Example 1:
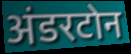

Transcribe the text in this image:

अंडरटोन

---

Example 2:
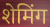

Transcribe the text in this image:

शेमिंग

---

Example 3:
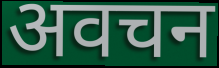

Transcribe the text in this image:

अवचन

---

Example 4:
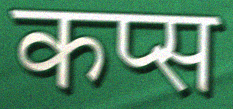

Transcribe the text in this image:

कप्स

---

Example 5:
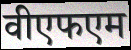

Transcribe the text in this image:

वीएफएम